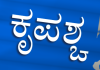
ಕೃಪಶ್ಚ